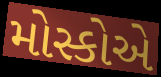
મોસ્કોએ